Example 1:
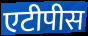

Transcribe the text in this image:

एटीपीस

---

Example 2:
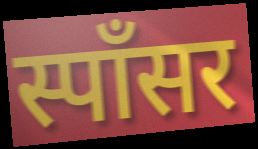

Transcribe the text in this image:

स्पॉंसर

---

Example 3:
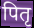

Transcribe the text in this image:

पितृ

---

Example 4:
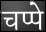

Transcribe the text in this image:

चप्पे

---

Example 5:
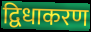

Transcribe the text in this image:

द्विधाकरण